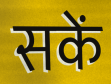
सकें